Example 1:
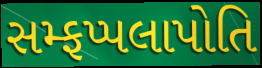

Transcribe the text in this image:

સમ્ફપ્પલાપોતિ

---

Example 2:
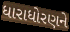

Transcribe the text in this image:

ધારાધોરણને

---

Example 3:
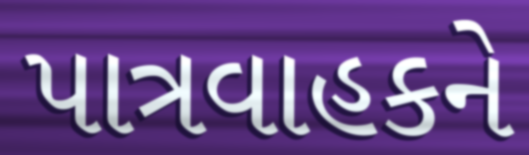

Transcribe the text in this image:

પાત્રવાહકને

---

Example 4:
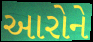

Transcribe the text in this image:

આરોને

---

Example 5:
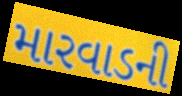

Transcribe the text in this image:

મારવાડની